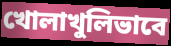
খোলাখুলিভাবে